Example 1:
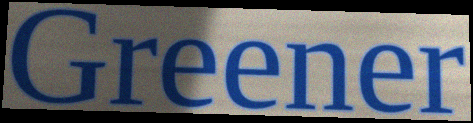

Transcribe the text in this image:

Greener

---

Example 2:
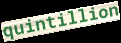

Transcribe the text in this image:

quintillion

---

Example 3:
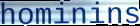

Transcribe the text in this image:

hominins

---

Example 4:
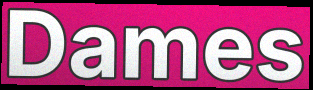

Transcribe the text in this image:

Dames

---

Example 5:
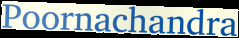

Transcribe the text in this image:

Poornachandra